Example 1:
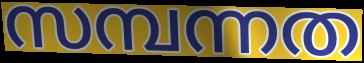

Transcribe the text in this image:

സമ്പന്നത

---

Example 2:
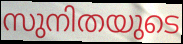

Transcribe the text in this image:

സുനിതയുടെ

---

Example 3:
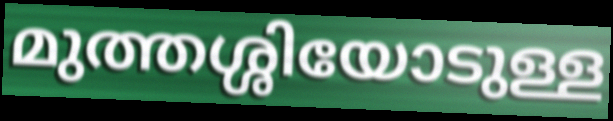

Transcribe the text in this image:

മുത്തശ്ശിയോടുള്ള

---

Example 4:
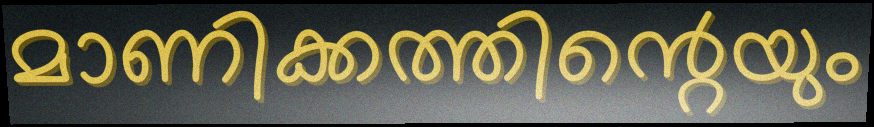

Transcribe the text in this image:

മാണിക്കത്തിന്റെയും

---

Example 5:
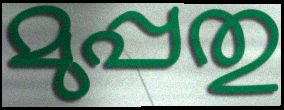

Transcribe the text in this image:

മുപ്പതു